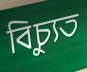
বিচ্যুত